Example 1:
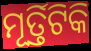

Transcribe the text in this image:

ମୂର୍ତ୍ତିଟିକି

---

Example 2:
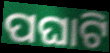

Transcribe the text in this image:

ପଘାଟି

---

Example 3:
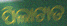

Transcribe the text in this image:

ପିଲାଟାତ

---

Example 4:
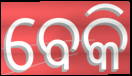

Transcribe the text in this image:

ବେକି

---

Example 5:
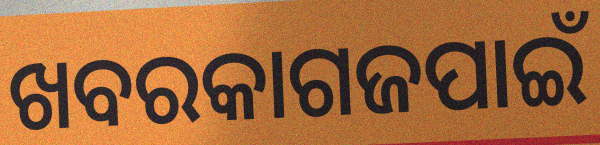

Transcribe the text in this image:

ଖବରକାଗଜପାଇଁ